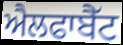
ਐਲਫਾਬੈੱਟ